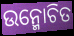
ଉନ୍ମୋଚିତ